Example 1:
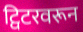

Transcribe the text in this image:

ट्विटरवरून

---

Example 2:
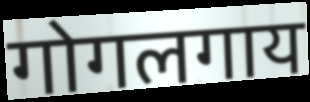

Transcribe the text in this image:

गोगलगाय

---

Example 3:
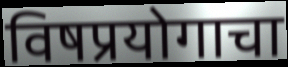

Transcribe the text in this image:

विषप्रयोगाचा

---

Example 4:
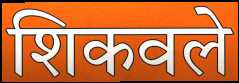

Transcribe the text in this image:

शिकवले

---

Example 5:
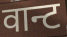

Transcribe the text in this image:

वान्ट